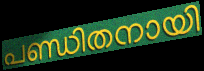
പണ്ഡിതനായി